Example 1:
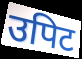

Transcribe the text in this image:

उपिट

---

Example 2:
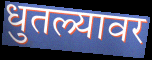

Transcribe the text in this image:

धुतल्यावर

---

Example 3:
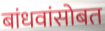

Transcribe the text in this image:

बांधवांसोबत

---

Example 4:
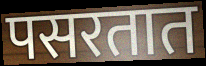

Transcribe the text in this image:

पसरतात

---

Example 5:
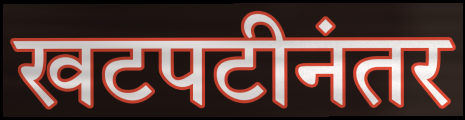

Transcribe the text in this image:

खटपटीनंतर